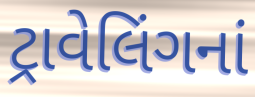
ટ્રાવેલિંગનાં